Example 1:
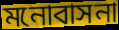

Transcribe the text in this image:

মনোবাসনা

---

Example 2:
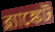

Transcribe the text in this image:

ব্ল্যাঙ্কেট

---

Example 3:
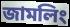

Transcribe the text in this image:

জামলিং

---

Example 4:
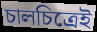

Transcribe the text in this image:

চালচিত্রেই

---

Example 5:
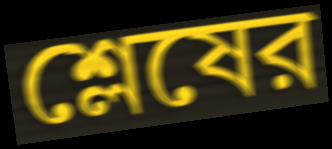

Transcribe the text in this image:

শ্লেষের